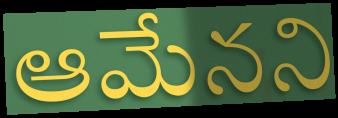
ఆమేనని